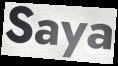
Saya